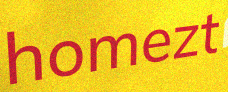
homezt